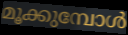
മൂക്കുമ്പോൾ